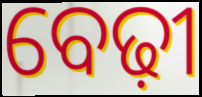
ବେଢ଼ୀ